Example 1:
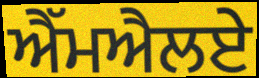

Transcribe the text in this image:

ਐੱਮਐਲਏ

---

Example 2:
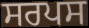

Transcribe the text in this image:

ਸਰਪਸ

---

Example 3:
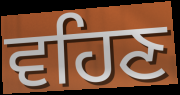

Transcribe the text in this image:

ਵਹਿਣ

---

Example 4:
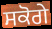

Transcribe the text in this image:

ਸਕੋਗੇ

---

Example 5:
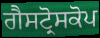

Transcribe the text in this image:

ਗੈਸਟ੍ਰੋਸਕੋਪ